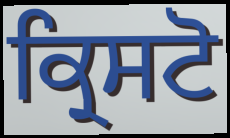
ਕ੍ਰਿਸਟੋ